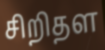
சிறிதள